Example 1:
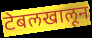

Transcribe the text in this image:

टेबलखालून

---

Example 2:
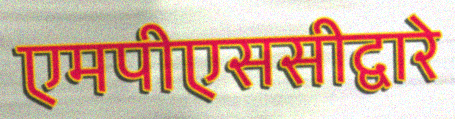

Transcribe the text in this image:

एमपीएससीद्वारे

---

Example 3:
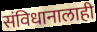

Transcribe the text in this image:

संविधानालाही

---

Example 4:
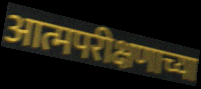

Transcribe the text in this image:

आत्मपरीक्षणाच्या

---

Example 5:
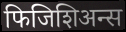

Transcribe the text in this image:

फिजिशिअन्स